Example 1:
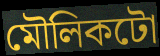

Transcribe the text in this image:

মৌলিকটো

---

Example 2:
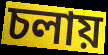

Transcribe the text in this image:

চলায়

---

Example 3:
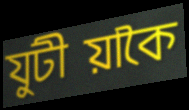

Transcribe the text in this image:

যুটীয়াকৈ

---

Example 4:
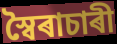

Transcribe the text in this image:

স্বৈৰাচাৰী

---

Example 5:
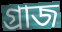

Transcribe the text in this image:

গ্ৰাজ